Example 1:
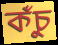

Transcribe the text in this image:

কঁচু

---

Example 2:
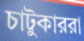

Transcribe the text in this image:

চাটুকাররা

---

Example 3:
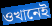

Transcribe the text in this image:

ওখানেই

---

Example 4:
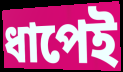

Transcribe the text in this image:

ধাপেই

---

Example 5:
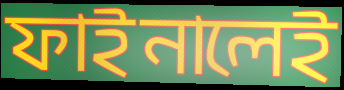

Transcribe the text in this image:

ফাইনালেই